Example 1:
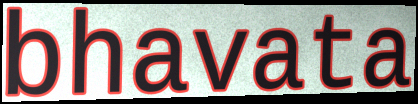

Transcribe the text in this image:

bhavata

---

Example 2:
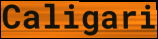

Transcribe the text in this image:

Caligari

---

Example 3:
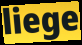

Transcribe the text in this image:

liege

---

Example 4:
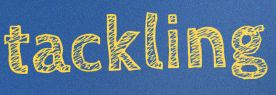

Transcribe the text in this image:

tackling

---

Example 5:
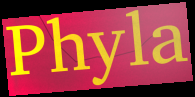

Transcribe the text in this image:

Phyla